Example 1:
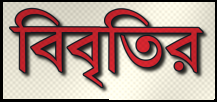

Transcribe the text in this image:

বিবৃতির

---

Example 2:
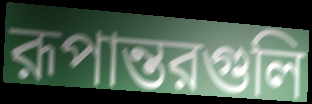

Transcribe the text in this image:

রূপান্তরগুলি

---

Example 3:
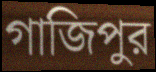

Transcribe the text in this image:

গাজিপুর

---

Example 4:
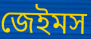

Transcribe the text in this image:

জেইমস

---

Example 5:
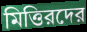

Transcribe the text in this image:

মিত্তিরদের